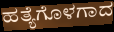
ಹತ್ಯೆಗೊಳಗಾದ